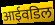
आईवडिल